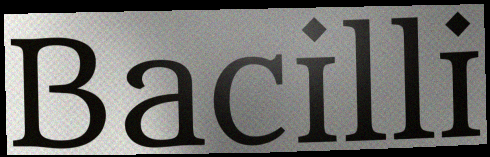
Bacilli